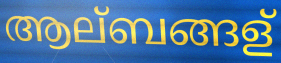
ആല്ബങ്ങള്